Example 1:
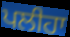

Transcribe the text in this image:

ਪਲੀਹਾ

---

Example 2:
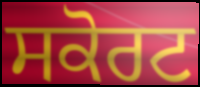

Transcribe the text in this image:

ਸਕੋਰਟ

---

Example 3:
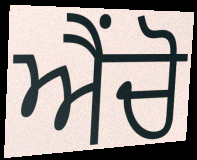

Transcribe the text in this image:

ਐਂਚੋ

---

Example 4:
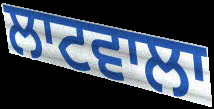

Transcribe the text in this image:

ਲਾਟਵਾਲਾ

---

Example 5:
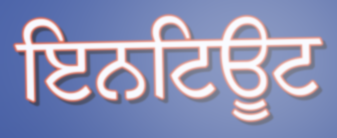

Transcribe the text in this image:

ਇਨਟਿਊਟ